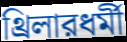
থ্রিলারধর্মী